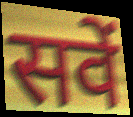
सवें